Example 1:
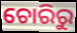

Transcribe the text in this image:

ଚୋରିରୁ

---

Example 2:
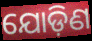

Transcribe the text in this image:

ଯୋଡ଼ିଣ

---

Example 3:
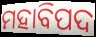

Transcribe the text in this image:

ମହାବିପଦ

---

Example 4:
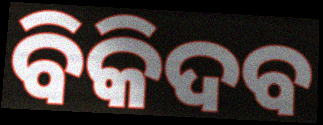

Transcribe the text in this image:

ବିକିଦବ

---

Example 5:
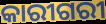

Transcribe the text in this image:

କାରୀଗରୀ